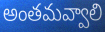
అంతమవ్వాలి